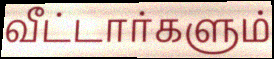
வீட்டார்களும்